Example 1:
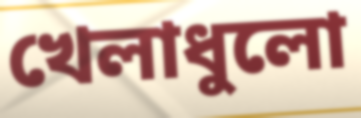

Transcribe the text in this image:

খেলাধুলো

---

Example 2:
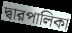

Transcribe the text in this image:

দ্বারপালিকা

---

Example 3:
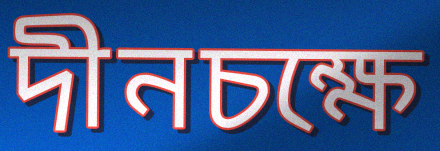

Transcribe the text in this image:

দীনচক্ষে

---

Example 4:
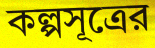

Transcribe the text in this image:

কল্পসূত্রের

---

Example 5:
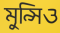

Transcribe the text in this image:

মুন্সিও